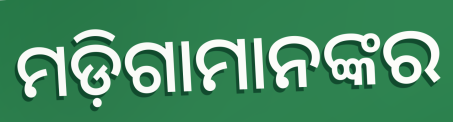
ମଡ଼ିଗାମାନଙ୍କର